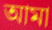
আমা